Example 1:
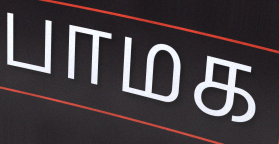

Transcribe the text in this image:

பாமக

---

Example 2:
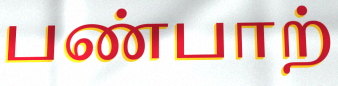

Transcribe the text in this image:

பண்பாற்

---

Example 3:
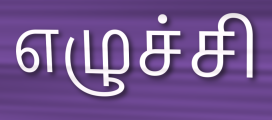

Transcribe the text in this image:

எழுச்சி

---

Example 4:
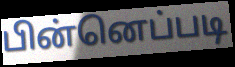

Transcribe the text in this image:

பின்னெப்படி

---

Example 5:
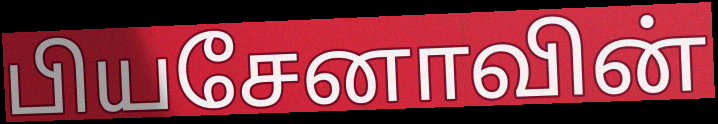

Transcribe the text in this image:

பியசேனாவின்